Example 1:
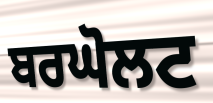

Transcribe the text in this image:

ਬਰਘੋਲਟ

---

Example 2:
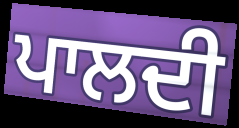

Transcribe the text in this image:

ਪਾਲਦੀ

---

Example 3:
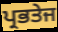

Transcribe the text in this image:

ਪ੍ਰਭਤੇਜ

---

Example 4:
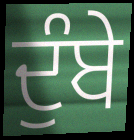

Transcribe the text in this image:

ਦੁੰਬੇ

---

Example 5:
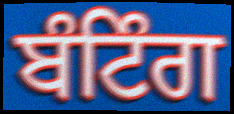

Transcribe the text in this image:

ਬੰਟਿੰਗ